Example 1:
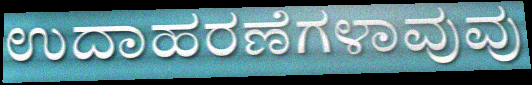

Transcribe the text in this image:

ಉದಾಹರಣೆಗಳಾವುವು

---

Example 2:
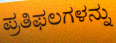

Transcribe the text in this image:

ಪ್ರತಿಫಲಗಳನ್ನು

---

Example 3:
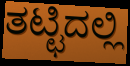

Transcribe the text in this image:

ತಟ್ಟಿದಲ್ಲಿ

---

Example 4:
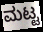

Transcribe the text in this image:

ಮಟ್ಟ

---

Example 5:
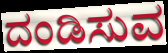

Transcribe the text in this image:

ದಂಡಿಸುವ